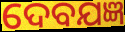
ଦେବଯଜ୍ଞ